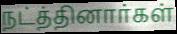
நட்த்தினார்கள்